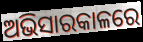
ଅଭିସାରକାଳରେ